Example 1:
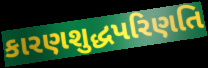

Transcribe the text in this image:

કારણશુદ્ધપરિણતિ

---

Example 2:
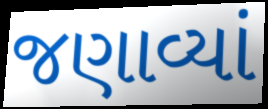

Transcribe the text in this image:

જણાવ્યાં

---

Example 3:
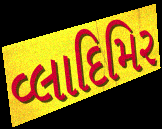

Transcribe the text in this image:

વ્લાદિમિર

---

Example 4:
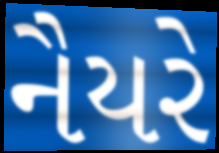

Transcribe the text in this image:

નૈયરે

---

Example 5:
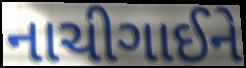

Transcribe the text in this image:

નાચીગાઈને